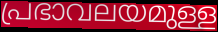
പ്രഭാവലയമുള്ള